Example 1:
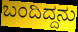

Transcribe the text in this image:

ಬಂದಿದ್ದನು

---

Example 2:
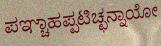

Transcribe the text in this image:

ಪಞ್ಚಾಹಪ್ಪಟಿಚ್ಛನ್ನಾಯೋ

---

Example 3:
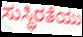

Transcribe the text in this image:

ಸುಸ್ಥಿರತೆಯು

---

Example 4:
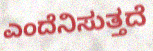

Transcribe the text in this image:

ಎಂದೆನಿಸುತ್ತದೆ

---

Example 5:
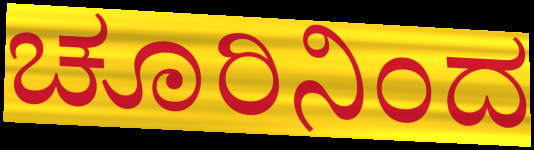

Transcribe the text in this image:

ಚೂರಿನಿಂದ